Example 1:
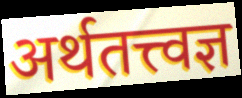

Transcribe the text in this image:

अर्थतत्त्वज्ञ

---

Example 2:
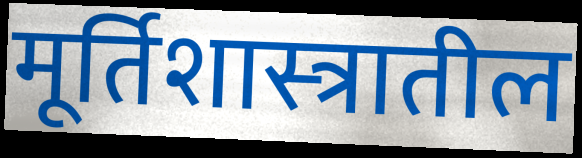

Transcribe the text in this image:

मूर्तिशास्त्रातील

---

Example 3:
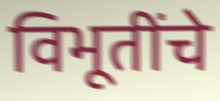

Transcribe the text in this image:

विभूतींचे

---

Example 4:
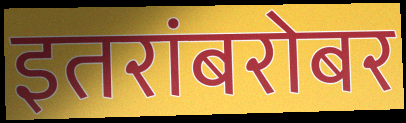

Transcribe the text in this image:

इतरांबरोबर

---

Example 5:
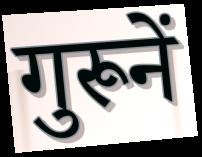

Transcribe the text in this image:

गुरूनें